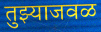
तुझ्याजवळ